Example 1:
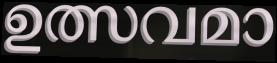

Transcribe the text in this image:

ഉത്സവമാ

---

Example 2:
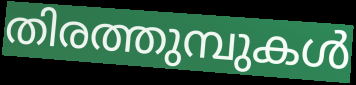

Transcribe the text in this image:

തിരത്തുമ്പുകൾ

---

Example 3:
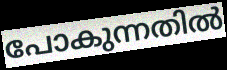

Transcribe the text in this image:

പോകുന്നതിൽ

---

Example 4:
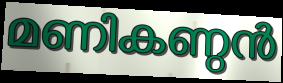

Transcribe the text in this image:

മണികണ്ഠൻ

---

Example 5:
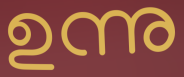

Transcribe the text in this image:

ഉന്നു